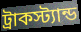
ট্রাকস্ট্যান্ড